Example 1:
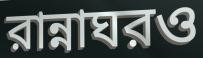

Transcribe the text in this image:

রান্নাঘরও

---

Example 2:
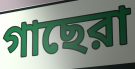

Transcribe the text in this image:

গাছেরা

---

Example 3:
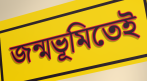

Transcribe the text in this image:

জন্মভূমিতেই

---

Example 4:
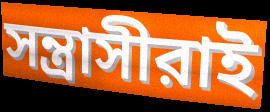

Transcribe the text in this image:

সন্ত্রাসীরাই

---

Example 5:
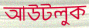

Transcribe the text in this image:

আউটলুক